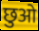
छुओ